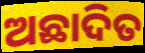
ଅଛାଦିତ